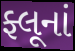
ફ્લૂનાં